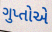
ગુપ્તોએ